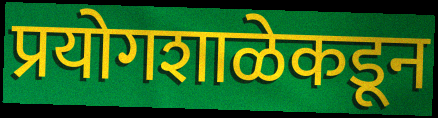
प्रयोगशाळेकडून